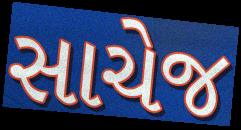
સાચેજ